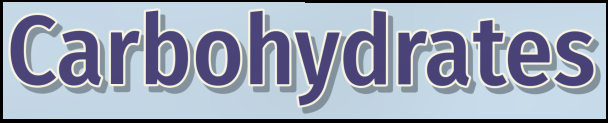
Carbohydrates